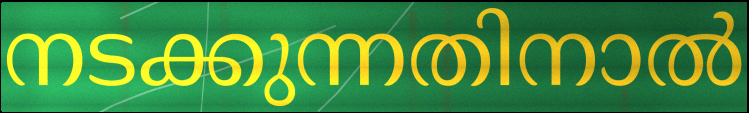
നടക്കുന്നതിനാൽ